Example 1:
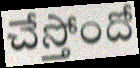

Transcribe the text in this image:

చేస్తోందో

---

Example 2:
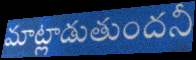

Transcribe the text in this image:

మాట్లాడుతుందనీ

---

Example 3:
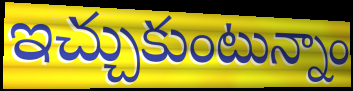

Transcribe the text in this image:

ఇచ్చుకుంటున్నాం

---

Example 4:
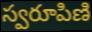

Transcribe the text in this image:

స్వరూపిణి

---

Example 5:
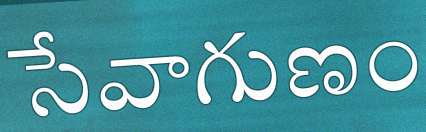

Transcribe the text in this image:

సేవాగుణం